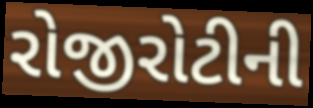
રોજીરોટીની